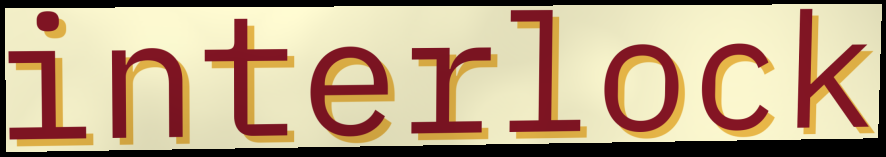
interlock